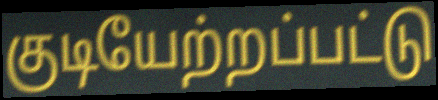
குடியேற்றப்பட்டு